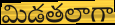
మిడతలాగా